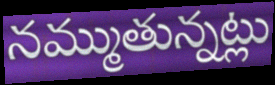
నమ్ముతున్నట్లు